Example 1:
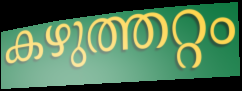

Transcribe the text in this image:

കഴുത്തറ്റം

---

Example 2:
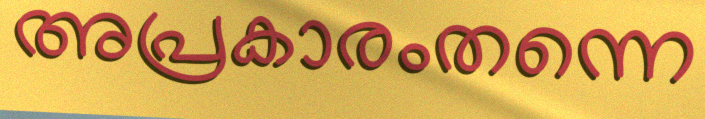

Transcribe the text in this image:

അപ്രകാരംതന്നെ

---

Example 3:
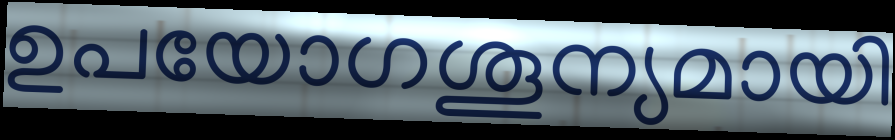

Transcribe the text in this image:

ഉപയോഗശൂന്യമായി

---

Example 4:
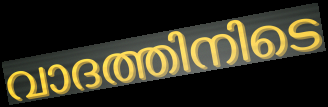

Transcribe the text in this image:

വാദത്തിനിടെ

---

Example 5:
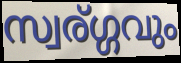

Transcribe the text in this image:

സ്വര്ഗ്ഗവും